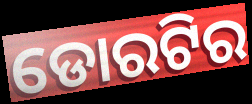
ଡୋରଟିର